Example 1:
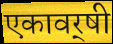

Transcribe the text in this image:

एकावर्षी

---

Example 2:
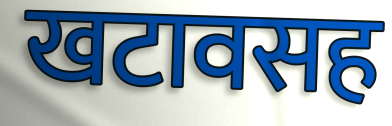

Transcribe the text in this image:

खटावसह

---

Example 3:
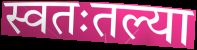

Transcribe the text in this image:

स्वतःतल्या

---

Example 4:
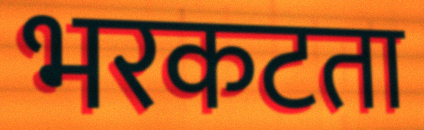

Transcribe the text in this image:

भरकटता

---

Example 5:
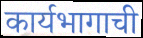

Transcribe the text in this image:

कार्यभागाची